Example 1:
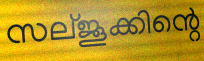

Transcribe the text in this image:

സല്ജൂക്കിന്റെ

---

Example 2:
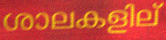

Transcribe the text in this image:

ശാലകളില്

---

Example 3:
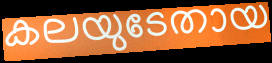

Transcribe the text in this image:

കലയുടേതായ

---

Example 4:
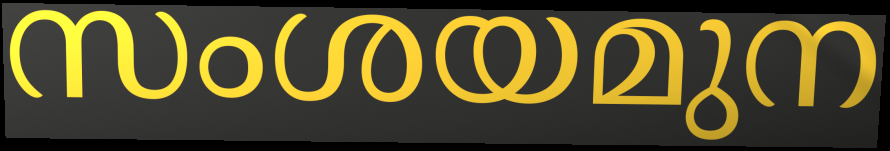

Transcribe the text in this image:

സംശയമുന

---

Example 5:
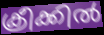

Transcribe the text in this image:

ക്രീക്കിൽ